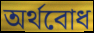
অৰ্থবোধ